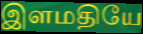
இளமதியே